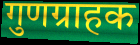
गुणग्राहक